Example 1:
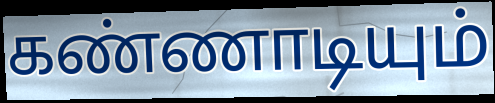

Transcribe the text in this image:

கண்ணாடியும்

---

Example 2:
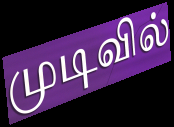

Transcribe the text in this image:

முடிவில்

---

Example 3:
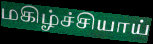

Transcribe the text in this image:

மகிழ்ச்சியாய்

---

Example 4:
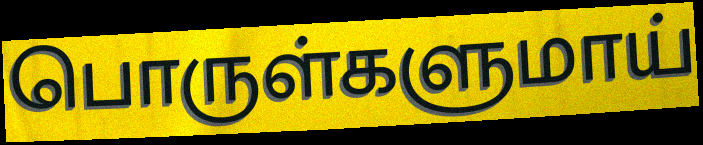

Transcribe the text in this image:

பொருள்களுமாய்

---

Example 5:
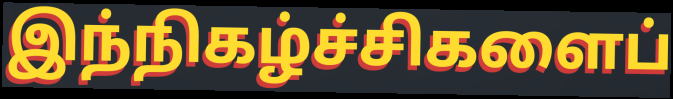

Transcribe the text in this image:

இந்நிகழ்ச்சிகளைப்